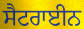
ਸੈਟਰਾਈਨ